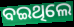
ବଇଥିଲେ